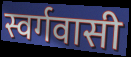
स्‍वर्गवासी